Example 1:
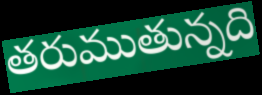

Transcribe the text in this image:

తరుముతున్నది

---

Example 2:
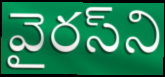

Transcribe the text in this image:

వైరస్‌ని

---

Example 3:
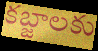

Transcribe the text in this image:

కబ్జాలకు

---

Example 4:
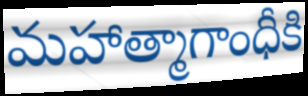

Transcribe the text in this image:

మహాత్మాగాంధీకి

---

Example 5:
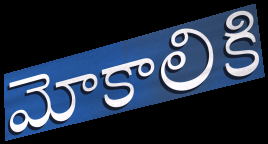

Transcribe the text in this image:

మోకాలికి